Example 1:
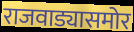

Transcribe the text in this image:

राजवाड्यासमोर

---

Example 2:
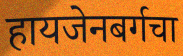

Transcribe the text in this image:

हायजेनबर्गचा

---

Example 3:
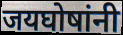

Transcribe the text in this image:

जयघोषांनी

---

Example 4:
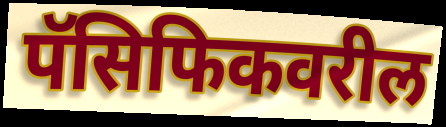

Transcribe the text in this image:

पॅसिफिकवरील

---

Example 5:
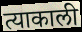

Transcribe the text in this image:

त्याकाली